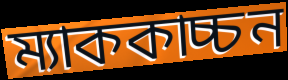
ম্যাককাচ্চন